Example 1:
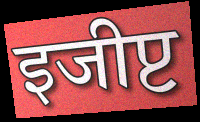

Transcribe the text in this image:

इजीप्ट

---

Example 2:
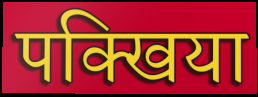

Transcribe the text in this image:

पक्खिया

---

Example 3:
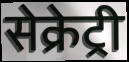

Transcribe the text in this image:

सेक्रेट्री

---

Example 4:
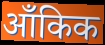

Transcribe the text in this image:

आँकिक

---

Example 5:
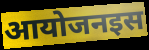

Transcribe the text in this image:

आयोजनइस